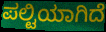
ಪಲ್ಟಿಯಾಗಿದೆ